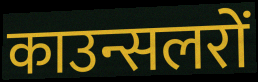
काउन्सलरों